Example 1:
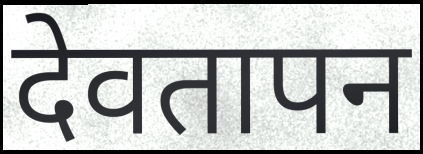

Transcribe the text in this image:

देवतापन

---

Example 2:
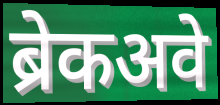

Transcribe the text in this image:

ब्रेकअवे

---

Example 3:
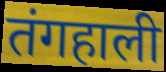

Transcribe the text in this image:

तंगहाली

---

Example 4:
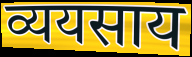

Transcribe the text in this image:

व्ययसाय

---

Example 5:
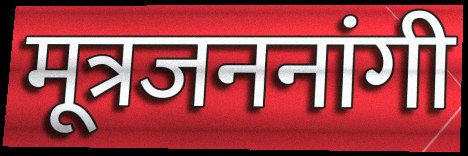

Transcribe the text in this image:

मूत्रजननांगी